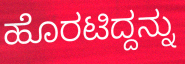
ಹೊರಟಿದ್ದನ್ನು